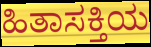
ಹಿತಾಸಕ್ತಿಯ